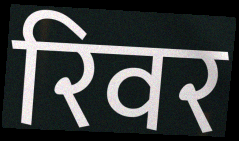
रिवर